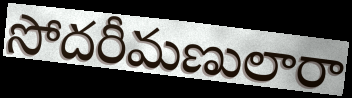
సోదరీమణులారా